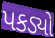
પકડ્યો